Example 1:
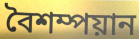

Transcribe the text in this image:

বৈশম্পয়ান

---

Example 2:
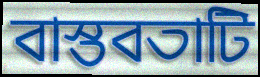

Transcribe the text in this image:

বাস্তবতাটি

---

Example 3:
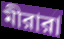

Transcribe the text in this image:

মীরারা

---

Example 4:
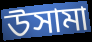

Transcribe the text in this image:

উসামা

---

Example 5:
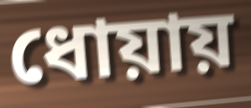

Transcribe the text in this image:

ধোয়ায়